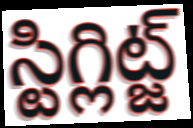
స్టిగ్లిట్జ్